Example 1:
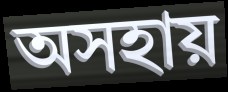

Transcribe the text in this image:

অসহায়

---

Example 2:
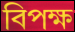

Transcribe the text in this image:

বিপক্ষ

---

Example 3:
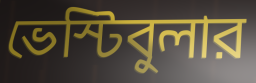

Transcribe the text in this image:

ভেস্টিবুলার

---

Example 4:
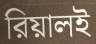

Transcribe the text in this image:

রিয়ালই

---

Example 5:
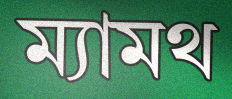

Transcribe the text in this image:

ম্যামথ